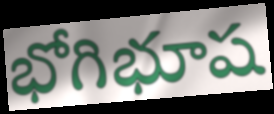
భోగిభూష